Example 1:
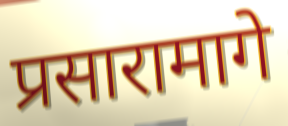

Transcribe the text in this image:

प्रसारामागे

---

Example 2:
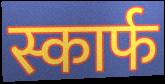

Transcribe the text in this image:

स्कार्फ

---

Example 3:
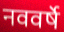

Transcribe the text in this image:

नववर्षे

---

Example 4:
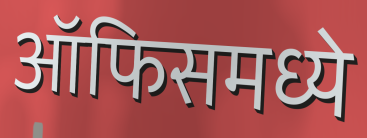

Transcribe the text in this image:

ऑफिसमध्ये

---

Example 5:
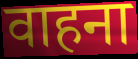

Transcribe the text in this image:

वाहना